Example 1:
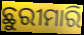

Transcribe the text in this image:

ଛୁରୀମାରି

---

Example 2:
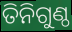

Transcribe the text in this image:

ତିନିଗୁଣ୍ଠ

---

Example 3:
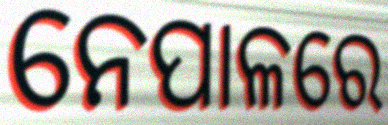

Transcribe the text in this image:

ନେପାଳରେ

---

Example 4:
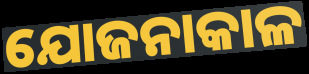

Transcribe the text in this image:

ଯୋଜନାକାଳ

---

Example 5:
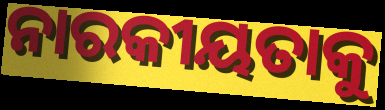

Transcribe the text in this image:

ନାରକୀୟତାକୁ